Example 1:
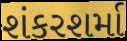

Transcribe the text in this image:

શંકરશર્મા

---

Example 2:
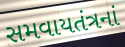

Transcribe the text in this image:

સમવાયતંત્રનાં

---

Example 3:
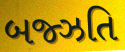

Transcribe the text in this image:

બજ્ઝતિ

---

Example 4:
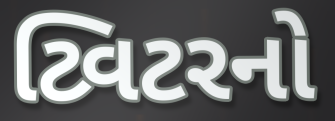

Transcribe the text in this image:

ટ્વિટરનો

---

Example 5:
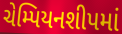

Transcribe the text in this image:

ચેમ્પિયનશીપમાં